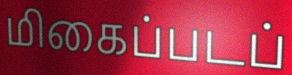
மிகைப்படப்